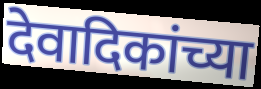
देवादिकांच्या